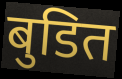
बुडित